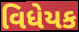
વિધેયક